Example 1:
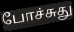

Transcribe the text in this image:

போச்சுது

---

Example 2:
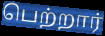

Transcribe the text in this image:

பெற்றார்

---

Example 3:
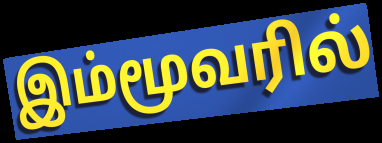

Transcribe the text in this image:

இம்மூவரில்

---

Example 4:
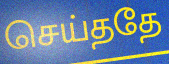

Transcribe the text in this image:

செய்ததே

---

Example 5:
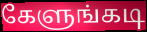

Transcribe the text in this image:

கேளுங்கடி